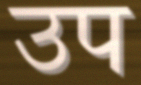
उप